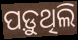
ପଡ଼ୁଥିଲି